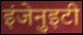
इंजेनुइटी